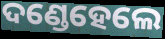
ଦଣ୍ଡେହେଲେ